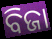
ବିଜା